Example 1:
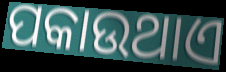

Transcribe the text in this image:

ପକାଉଥାଏ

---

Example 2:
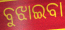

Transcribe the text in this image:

ବୁଝାଇବା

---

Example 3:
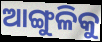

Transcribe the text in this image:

ଆଙ୍ଗୁଳିକୁ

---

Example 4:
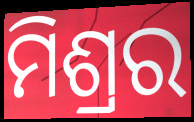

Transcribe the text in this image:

ମିଶ୍ରର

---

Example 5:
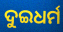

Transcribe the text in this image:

ଦୁଇଧର୍ମ